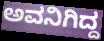
ಅವನಿಗಿದ್ದ